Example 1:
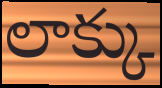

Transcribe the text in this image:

లాక్కు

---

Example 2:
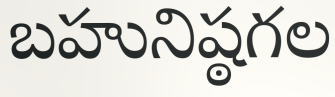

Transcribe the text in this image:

బహునిష్ఠగల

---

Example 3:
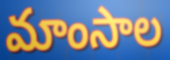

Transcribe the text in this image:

మాంసాల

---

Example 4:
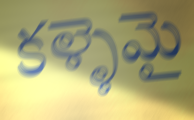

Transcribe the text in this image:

కళ్ళెమై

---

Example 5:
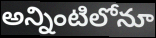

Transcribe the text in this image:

అన్నింటిలోనూ